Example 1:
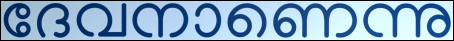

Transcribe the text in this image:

ദേവനാണെന്നു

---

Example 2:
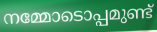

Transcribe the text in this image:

നമ്മോടൊപ്പമുണ്ട്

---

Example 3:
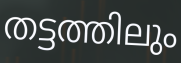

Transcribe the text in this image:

തട്ടത്തിലും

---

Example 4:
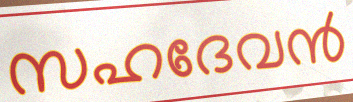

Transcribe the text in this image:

സഹദേവൻ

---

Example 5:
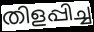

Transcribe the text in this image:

തിളപ്പിച്ച